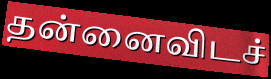
தன்னைவிடச்